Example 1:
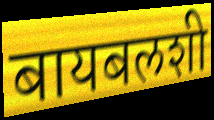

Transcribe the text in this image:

बायबलशी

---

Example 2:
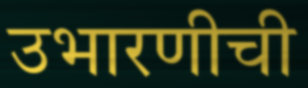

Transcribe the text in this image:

उभारणीची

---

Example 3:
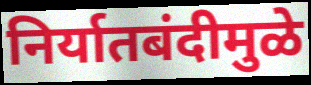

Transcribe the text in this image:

निर्यातबंदीमुळे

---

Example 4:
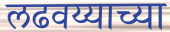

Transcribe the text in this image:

लढवय्याच्या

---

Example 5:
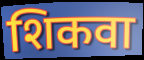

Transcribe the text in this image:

शिकवा